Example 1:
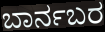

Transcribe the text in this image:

ಬಾರ್ನಬರ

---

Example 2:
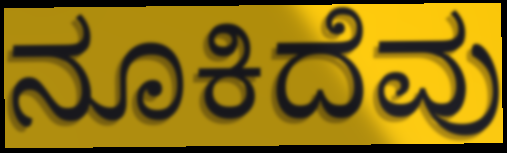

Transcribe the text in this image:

ನೂಕಿದೆವು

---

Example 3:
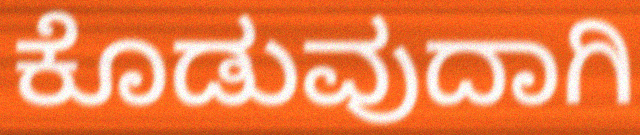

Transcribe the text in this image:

ಕೊಡುವುದಾಗಿ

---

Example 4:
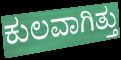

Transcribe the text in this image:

ಕುಲವಾಗಿತ್ತು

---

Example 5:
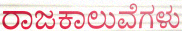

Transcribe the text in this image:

ರಾಜಕಾಲುವೆಗಳು